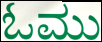
ಓಮು